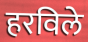
हरविले